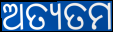
ଅତ୍ୟତମ